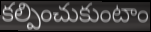
కల్పించుకుంటాం